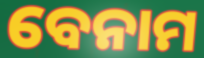
ବେନାମ